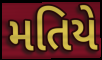
મતિયે